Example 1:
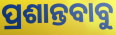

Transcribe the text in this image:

ପ୍ରଶାନ୍ତବାବୁ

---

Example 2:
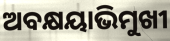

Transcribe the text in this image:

ଅବକ୍ଷୟାଭିମୁଖୀ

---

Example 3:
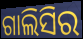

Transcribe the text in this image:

ଗାଲିସିର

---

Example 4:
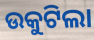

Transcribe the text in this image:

ଉକୁଟିଲା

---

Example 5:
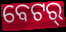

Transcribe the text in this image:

ବେଟର୍